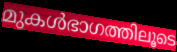
മുകൾഭാഗത്തിലൂടെ